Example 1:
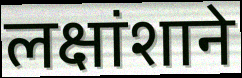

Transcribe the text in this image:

लक्षांशाने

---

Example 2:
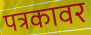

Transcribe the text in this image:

पत्रकावर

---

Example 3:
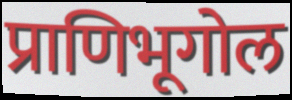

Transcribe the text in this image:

प्राणिभूगोल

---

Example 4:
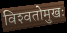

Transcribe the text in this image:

विश्वतोमुखः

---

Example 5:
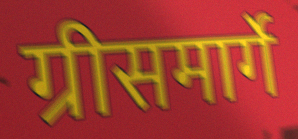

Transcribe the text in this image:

ग्रीसमार्गे